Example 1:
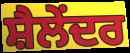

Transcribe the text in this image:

ਸ਼ੈਲੇਂਦਰ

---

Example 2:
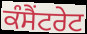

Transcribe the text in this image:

ਕੰਸੈਂਟਰੇਟ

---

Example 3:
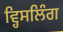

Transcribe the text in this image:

ਵ੍ਹਿਸਲਿੰਗ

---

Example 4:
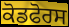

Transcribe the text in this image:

ਕੋਡਫੋਰਸ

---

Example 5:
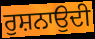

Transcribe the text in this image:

ਰੁਸ਼ਨਾਉਦੀ